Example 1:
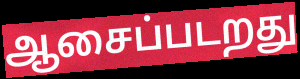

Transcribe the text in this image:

ஆசைப்படறது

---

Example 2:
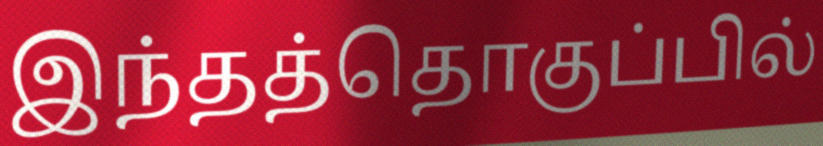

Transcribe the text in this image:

இந்தத்தொகுப்பில்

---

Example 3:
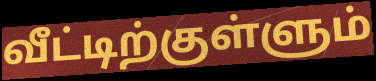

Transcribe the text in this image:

வீட்டிற்குள்ளும்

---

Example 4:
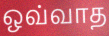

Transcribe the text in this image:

ஒவ்வாத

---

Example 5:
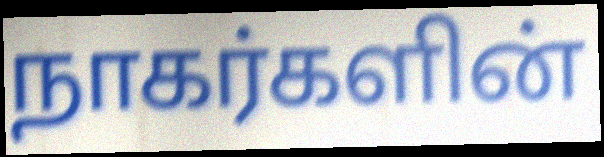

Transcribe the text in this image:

நாகர்களின்